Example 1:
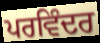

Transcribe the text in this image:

ਪਰਵਿੰਦਰ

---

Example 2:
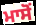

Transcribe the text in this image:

ਮਾਸੋਂ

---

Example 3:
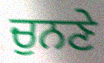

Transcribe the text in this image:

ਚੁਨਣੇ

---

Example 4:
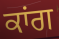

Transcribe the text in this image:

ਕਾਂਗ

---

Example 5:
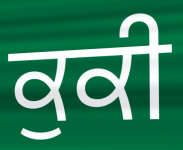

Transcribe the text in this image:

ਕੁਕੀ